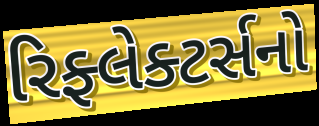
રિફ્લેક્ટર્સનો